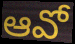
ఆవో